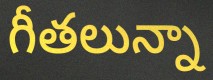
గీతలున్నా